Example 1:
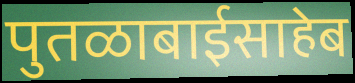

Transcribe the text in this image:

पुतळाबाईसाहेब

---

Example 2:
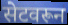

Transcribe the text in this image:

सेटवरून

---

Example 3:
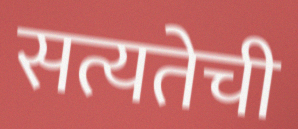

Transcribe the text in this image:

सत्यतेची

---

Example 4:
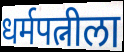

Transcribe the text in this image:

धर्मपत्नीला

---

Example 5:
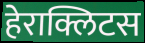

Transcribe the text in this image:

हेराक्लिटस